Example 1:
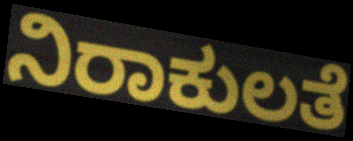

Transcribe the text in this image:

ನಿರಾಕುಲತೆ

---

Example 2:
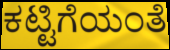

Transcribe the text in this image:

ಕಟ್ಟಿಗೆಯಂತೆ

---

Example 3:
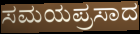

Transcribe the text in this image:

ಸಮಯಪ್ರಸಾದ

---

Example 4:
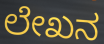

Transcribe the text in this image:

ಲೇಖನ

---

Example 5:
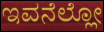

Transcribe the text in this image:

ಇವನೆಲ್ಲೋ